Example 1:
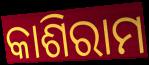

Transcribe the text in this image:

କାଶିରାମ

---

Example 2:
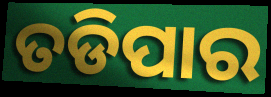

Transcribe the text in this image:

ତଡିପାର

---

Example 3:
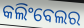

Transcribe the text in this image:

କଲିଂବେଲର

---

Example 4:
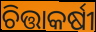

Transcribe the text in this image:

ଚିତ୍ତାକର୍ଷୀ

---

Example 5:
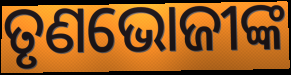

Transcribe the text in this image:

ତୃଣଭୋଜୀଙ୍କ